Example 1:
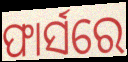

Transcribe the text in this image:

ଫାର୍ସରେ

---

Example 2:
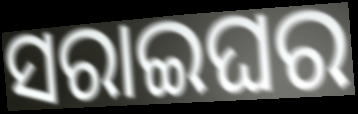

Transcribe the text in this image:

ସରାଇଘର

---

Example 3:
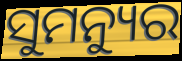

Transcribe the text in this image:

ସୁମନ୍ୟୁର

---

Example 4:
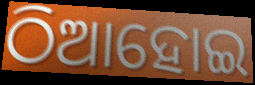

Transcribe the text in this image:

ଠିଆହୋଇ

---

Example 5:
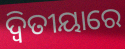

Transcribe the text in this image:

ଦ୍ୱିତୀୟାରେ